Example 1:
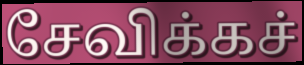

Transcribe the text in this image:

சேவிக்கச்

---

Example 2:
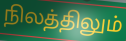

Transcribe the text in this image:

நிலத்திலும்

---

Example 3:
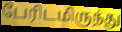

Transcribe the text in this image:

பேரிடமிருந்து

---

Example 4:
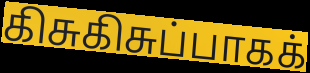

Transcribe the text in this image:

கிசுகிசுப்பாகக்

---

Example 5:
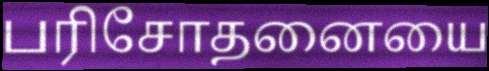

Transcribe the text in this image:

பரிசோதனையை